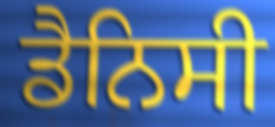
ਡੈਨਿਸੀ